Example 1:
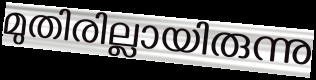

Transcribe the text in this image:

മുതിരില്ലായിരുന്നു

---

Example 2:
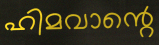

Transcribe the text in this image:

ഹിമവാന്റെ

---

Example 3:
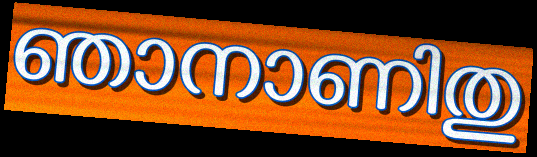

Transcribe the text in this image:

ഞാനാണിതു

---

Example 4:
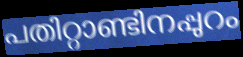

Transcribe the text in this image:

പതിറ്റാണ്ടിനപ്പുറം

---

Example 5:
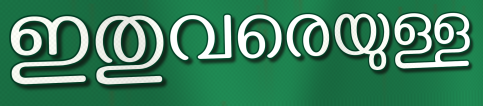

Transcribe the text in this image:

ഇതുവരെയുള്ള